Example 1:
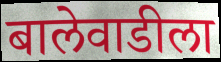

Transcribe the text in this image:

बालेवाडीला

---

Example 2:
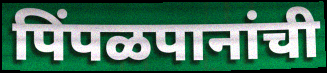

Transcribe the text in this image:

पिंपळपानांची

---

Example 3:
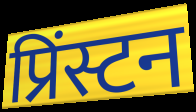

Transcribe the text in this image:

प्रिंस्टन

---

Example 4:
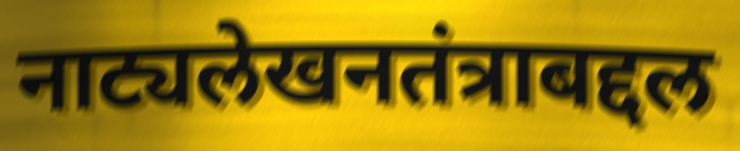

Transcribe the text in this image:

नाट्यलेखनतंत्राबद्दल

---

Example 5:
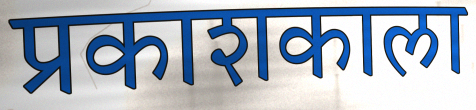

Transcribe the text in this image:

प्रकाशकाला